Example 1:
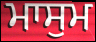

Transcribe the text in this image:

ਮਾਸੁਮ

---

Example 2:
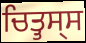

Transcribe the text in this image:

ਚਿਤ੍ਤਸ੍ਸ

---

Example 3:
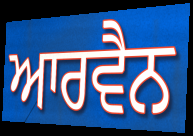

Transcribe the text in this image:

ਆਰਵੈਨ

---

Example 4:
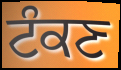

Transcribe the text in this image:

ਟੰਕਣ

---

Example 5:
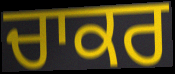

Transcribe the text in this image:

ਚਾਕਰ